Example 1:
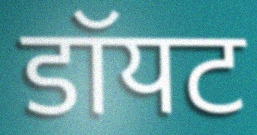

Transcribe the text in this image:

डॉयट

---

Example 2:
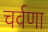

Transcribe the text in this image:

चर्वणा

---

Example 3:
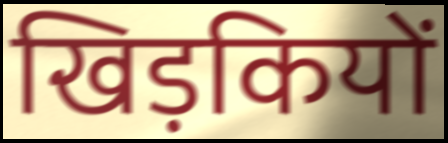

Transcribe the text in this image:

खिड़कियों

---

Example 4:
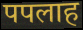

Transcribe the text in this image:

पपलाह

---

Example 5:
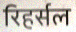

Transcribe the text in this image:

रिहर्सल